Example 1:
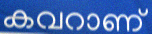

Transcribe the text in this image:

കവറാണ്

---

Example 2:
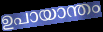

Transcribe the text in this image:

ഉപായാന്തം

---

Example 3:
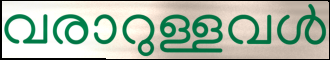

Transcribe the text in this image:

വരാറുള്ളവൾ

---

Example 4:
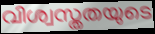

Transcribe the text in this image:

വിശ്വസ്തതയുടെ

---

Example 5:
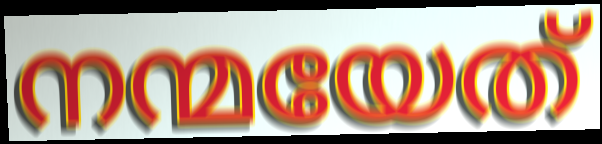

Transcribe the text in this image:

നന്മയേത്